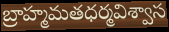
బ్రాహ్మమతధర్మవిశ్వాస